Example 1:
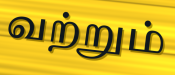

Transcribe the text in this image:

வற்றும்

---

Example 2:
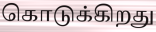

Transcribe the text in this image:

கொடுக்கிறது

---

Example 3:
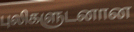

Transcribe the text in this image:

புலிகளுடனான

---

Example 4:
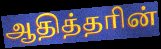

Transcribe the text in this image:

ஆதித்தரின்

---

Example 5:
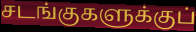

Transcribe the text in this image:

சடங்குகளுக்குப்